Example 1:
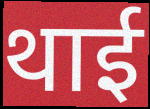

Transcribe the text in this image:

थाई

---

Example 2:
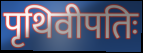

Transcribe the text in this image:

पृथिवीपतिः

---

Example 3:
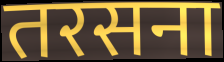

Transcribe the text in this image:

तरसना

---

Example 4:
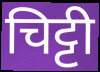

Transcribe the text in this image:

चिट्टी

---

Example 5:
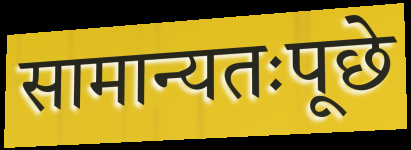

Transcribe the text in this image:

सामान्यतःपूछे